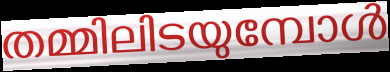
തമ്മിലിടയുമ്പോൾ